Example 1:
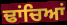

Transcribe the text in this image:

ਢਾਂਚਿਆਂ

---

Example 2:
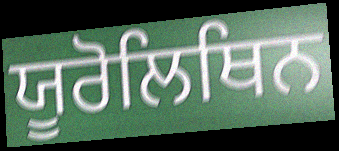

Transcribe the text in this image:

ਯੂਰੋਲਿਥਿਨ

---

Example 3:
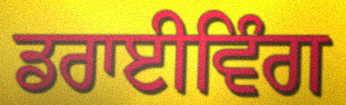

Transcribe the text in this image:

ਡਰਾਈਵਿੰਗ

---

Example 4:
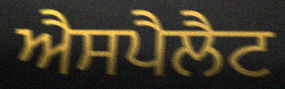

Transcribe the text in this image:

ਐਸਪੈਲੈਟ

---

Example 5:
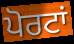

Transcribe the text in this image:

ਪੋਰਟਾਂ